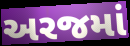
અરજમાં